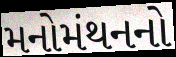
મનોમંથનનો